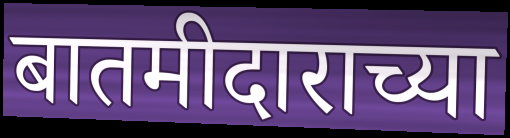
बातमीदाराच्या